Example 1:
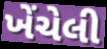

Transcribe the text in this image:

ખેંચેલી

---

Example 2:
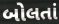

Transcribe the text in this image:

બોલતાં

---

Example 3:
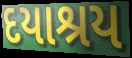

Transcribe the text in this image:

દયાશ્રય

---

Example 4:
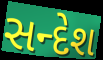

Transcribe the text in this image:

સન્દેશ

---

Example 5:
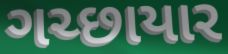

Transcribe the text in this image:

ગચ્છાયાર